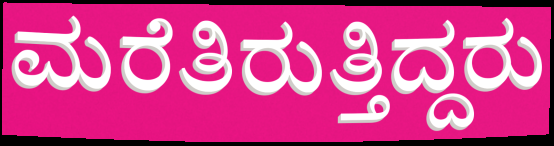
ಮರೆತಿರುತ್ತಿದ್ದರು